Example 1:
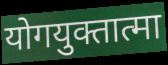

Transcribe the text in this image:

योगयुक्तात्मा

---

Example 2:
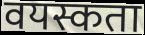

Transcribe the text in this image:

वयस्कता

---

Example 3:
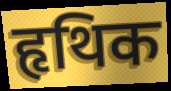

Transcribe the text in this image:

हृथिक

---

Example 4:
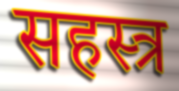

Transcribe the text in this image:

सहस्‍त्र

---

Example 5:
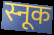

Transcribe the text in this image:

स्नूक